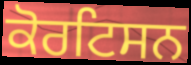
ਕੋਰਟਿਸਨ